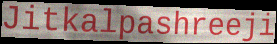
Jitkalpashreeji